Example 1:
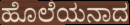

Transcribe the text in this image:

ಹೊಲೆಯನಾದ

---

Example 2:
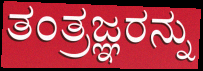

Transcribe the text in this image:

ತಂತ್ರಜ್ಞರನ್ನು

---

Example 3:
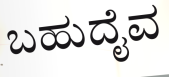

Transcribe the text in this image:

ಬಹುದೈವ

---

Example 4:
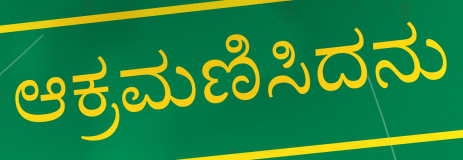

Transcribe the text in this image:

ಆಕ್ರಮಣಿಸಿದನು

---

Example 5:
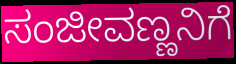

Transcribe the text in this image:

ಸಂಜೀವಣ್ಣನಿಗೆ